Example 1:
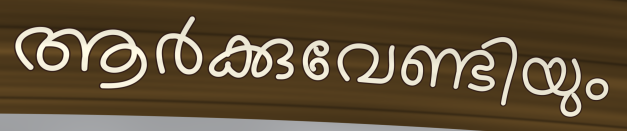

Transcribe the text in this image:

ആർക്കുവേണ്ടിയും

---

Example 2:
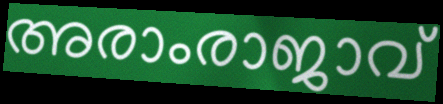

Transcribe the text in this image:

അരാംരാജാവ്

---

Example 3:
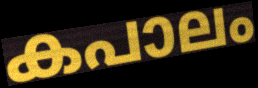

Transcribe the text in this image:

കപാലം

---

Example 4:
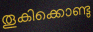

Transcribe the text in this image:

തൂകിക്കൊണ്ടു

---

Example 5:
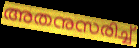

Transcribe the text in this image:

അതനുസരിച്ച്